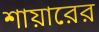
শায়ারের